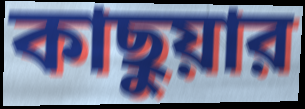
কাছুয়ার